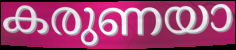
കരുണയാ